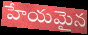
హేయమైన